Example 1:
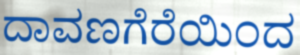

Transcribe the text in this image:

ದಾವಣಗೆರೆಯಿಂದ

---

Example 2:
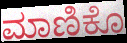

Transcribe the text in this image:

ಮಾಣಿಕೊ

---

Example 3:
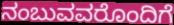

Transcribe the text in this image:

ನಂಬುವವರೊಂದಿಗೆ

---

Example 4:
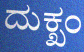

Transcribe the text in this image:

ದುಕ್ಖಂ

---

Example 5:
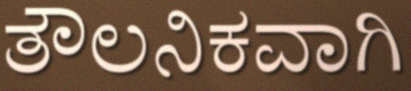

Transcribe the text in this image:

ತೌಲನಿಕವಾಗಿ